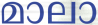
മാലാ